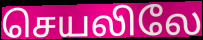
செயலிலே